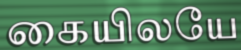
கையிலயே